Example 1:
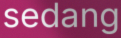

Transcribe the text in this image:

sedang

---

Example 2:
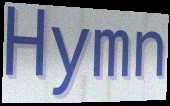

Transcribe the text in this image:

Hymn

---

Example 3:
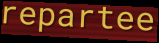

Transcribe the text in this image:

repartee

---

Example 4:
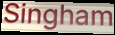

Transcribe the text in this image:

Singham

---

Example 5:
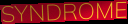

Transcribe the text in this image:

SYNDROME